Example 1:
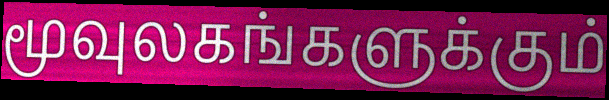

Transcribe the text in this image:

மூவுலகங்களுக்கும்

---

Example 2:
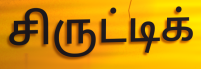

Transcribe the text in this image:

சிருட்டிக்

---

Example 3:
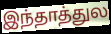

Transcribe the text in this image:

இந்தாத்துல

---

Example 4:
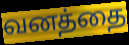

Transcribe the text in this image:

வனத்தை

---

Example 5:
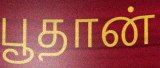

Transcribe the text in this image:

பூதான்